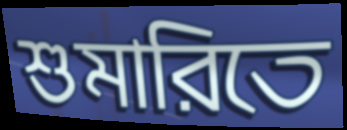
শুমারিতে